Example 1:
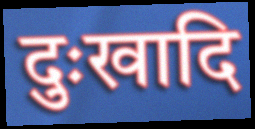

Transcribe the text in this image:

दुःखादि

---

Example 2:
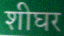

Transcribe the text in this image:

शीघर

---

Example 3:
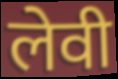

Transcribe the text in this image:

लेवी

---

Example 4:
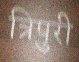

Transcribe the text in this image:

त्रिपुरी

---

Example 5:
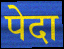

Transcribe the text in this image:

पेदा